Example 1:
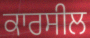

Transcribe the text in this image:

ਕਾਰਸੀਲ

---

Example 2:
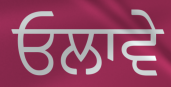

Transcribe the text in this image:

ਓਲਾਵੇ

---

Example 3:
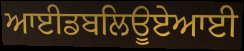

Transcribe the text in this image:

ਆਈਡਬਲਿਊਏਆਈ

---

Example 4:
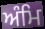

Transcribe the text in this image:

ਅੰਮਿ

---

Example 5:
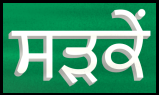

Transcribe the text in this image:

ਸੜਕੇਂ